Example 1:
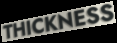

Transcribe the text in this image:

THICKNESS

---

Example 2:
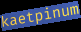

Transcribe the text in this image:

kaetpinum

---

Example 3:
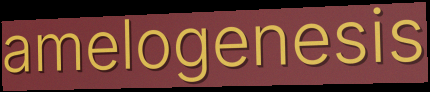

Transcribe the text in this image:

amelogenesis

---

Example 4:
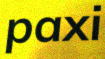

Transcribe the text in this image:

paxi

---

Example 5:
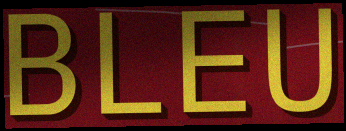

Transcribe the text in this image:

BLEU